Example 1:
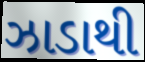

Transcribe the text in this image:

ઝાડાથી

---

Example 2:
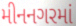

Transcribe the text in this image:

મીનનગરમાં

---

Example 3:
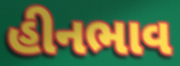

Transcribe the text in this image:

હીનભાવ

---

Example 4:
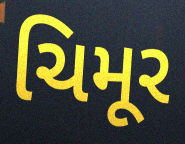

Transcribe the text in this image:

ચિમૂર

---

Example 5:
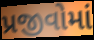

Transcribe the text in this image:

પ્રજીવોમાં